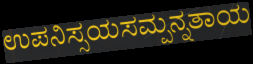
ಉಪನಿಸ್ಸಯಸಮ್ಪನ್ನತಾಯ